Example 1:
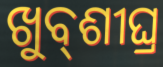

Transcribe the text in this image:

ଖୁବ୍‌ଶୀଘ୍ର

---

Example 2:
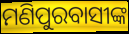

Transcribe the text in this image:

ମଣିପୁରବାସୀଙ୍କ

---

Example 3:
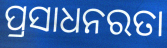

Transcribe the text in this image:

ପ୍ରସାଧନରତା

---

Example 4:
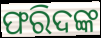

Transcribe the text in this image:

ଫରିଦଙ୍କ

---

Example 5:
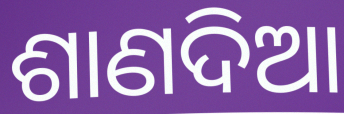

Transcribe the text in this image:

ଶାଣଦିଆ